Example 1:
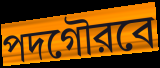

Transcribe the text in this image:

পদগৌরবে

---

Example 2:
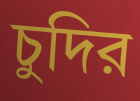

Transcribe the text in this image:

চুদির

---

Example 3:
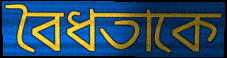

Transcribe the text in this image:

বৈধতাকে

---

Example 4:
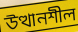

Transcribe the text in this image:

উত্থানশীল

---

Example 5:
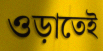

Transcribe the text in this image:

ওড়াতেই